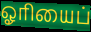
ஓரியைப்